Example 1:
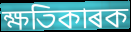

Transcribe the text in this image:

ক্ষতিকাৰক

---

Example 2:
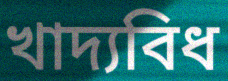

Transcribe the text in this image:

খাদ্যবিধ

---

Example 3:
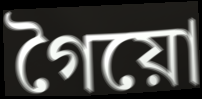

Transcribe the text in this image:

গৈয়ো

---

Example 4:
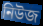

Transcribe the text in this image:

নিউজ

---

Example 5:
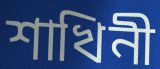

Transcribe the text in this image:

শাখিনী